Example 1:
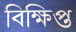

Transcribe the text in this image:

বিক্ষিপ্ত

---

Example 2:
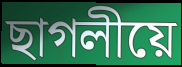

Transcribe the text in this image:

ছাগলীয়ে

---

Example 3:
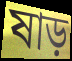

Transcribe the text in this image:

ষাড়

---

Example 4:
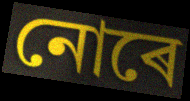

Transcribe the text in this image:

নোৰে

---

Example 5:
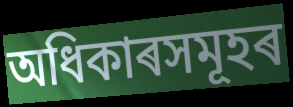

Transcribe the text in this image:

অধিকাৰসমূহৰ